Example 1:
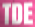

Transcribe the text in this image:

TDE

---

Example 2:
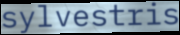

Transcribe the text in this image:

sylvestris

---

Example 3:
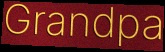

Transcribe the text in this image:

Grandpa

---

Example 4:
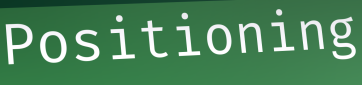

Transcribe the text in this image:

Positioning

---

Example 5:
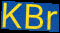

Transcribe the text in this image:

KBr